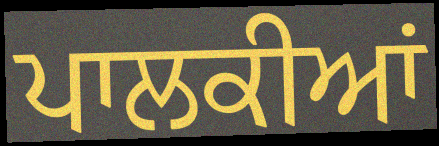
ਪਾਲਕੀਆਂ